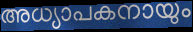
അധ്യാപകനായും